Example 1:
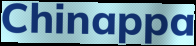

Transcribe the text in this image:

Chinappa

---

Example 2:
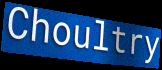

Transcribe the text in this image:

Choultry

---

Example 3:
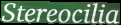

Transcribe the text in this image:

Stereocilia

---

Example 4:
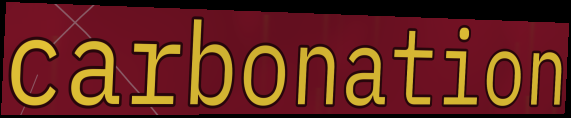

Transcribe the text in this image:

carbonation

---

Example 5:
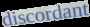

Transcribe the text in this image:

discordant